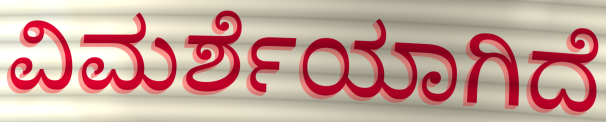
ವಿಮರ್ಶೆಯಾಗಿದೆ